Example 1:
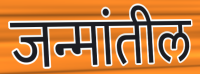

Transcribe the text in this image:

जन्मांतील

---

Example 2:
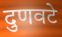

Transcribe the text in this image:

दुणवटे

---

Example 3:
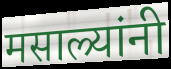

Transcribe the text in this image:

मसाल्यांनी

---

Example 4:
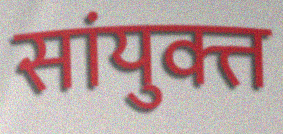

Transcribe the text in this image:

सांयुक्त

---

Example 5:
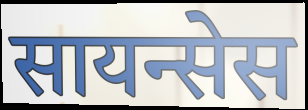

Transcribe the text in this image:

सायन्सेस